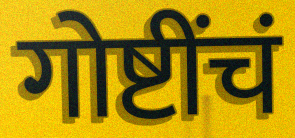
गोष्टींचं